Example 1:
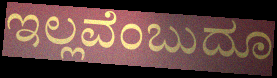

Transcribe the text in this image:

ಇಲ್ಲವೆಂಬುದೂ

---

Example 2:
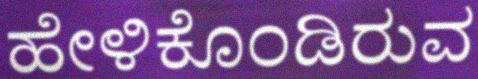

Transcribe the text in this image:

ಹೇಳಿಕೊಂಡಿರುವ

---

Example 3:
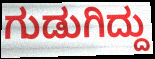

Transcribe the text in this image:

ಗುಡುಗಿದ್ದು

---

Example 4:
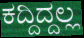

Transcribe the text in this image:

ಕದ್ದಿದ್ದಲ್ಲ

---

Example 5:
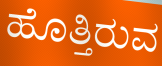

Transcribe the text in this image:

ಹೊತ್ತಿರುವ